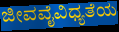
ಜೀವವೈವಿಧ್ಯತೆಯ